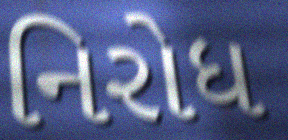
નિરોધ